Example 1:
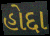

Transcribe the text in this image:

હોદ્દા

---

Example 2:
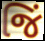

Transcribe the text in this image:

જિં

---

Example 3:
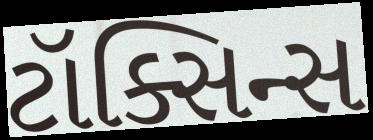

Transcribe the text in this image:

ટૉક્સિન્સ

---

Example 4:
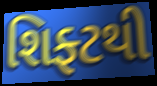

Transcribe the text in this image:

શિફ્ટથી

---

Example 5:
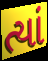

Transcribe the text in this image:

ત્યાં